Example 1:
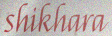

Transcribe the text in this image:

shikhara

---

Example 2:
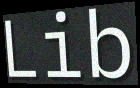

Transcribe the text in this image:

Lib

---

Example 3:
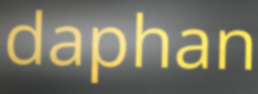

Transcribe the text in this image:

daphan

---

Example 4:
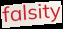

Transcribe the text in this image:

falsity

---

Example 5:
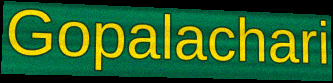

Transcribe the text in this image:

Gopalachari